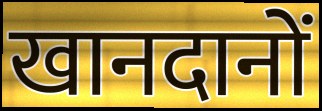
खानदानों